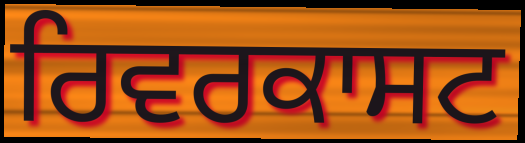
ਰਿਵਰਕਾਸਟ